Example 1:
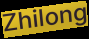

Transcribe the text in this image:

Zhilong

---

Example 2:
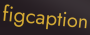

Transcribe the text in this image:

figcaption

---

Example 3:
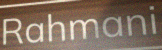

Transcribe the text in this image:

Rahmani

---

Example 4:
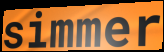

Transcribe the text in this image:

simmer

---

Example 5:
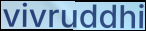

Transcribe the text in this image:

vivruddhi